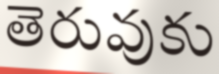
తెరువుకు